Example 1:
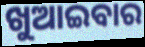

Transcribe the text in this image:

ଖୁଆଇବାର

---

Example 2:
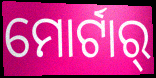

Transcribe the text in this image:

ମୋର୍ଟାର୍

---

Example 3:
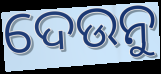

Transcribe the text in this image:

ଦେଉନୁ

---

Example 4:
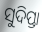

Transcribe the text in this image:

ସୁଦିପ୍ତା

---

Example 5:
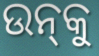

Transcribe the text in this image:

ଉନ୍‌କୁ